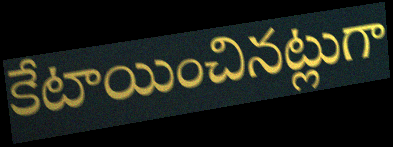
కేటాయించినట్లుగా